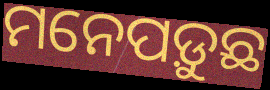
ମନେପଡ଼ୁଛ